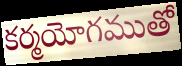
కర్మయోగముతో